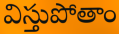
విస్తుపోతాం